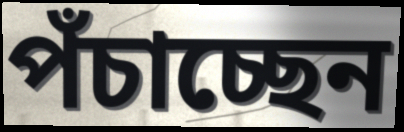
পঁচাচ্ছেন